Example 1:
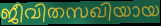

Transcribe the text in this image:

ജീവിതസഖിയായ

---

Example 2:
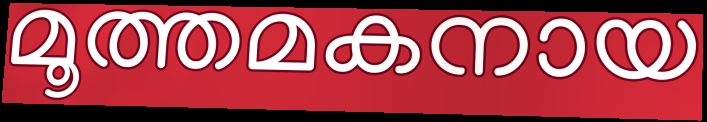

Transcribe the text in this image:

മൂത്തമകനായ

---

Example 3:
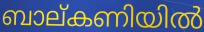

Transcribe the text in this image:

ബാല്കണിയിൽ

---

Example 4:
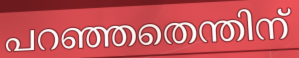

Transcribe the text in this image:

പറഞ്ഞതെന്തിന്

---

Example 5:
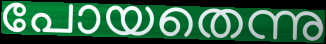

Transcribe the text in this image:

പോയതെന്നു